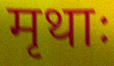
मृथाः